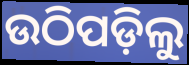
ଉଠିପଡ଼ିଲୁ